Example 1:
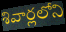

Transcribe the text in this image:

శివార్లలోని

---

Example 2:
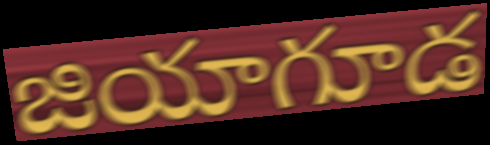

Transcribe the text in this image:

జియాగూడ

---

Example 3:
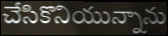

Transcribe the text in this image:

చేసికొనియున్నాను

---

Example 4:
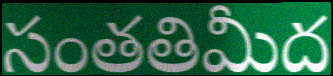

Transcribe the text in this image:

సంతతిమీద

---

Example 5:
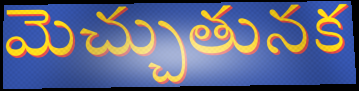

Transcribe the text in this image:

మెచ్చుతునక